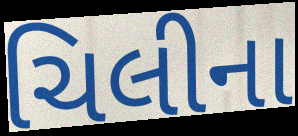
ચિલીના